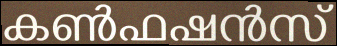
കൺഫഷൻസ്